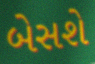
બેસશે